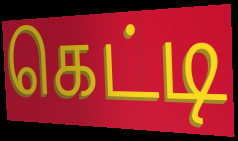
கெட்டி